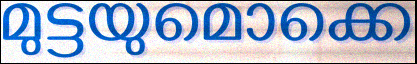
മുട്ടയുമൊക്കെ